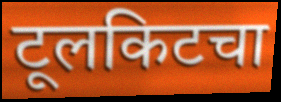
टूलकिटचा